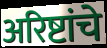
अरिष्टांचे